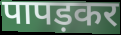
पापड़कर